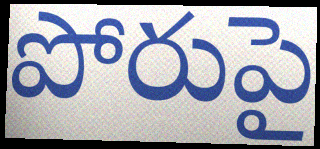
పోరుపై